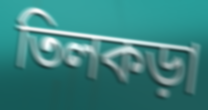
তিলকড়া